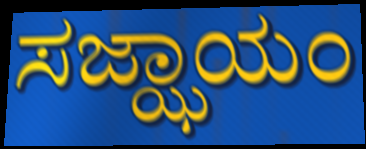
ಸಜ್ಝಾಯಂ